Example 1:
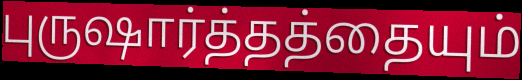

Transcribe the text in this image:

புருஷார்த்தத்தையும்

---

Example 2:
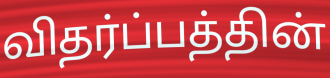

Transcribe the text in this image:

விதர்ப்பத்தின்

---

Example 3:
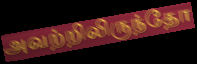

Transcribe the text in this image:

அவற்றிலிருந்தோ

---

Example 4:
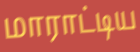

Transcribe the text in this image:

மாராட்டிய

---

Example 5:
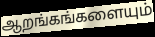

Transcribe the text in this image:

ஆறங்கங்களையும்